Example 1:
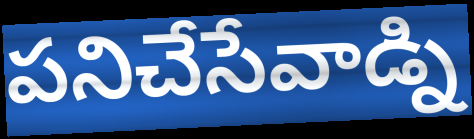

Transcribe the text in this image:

పనిచేసేవాడ్ని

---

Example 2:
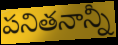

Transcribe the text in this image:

పనితనాన్నీ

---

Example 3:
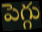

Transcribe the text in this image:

పెగ్గు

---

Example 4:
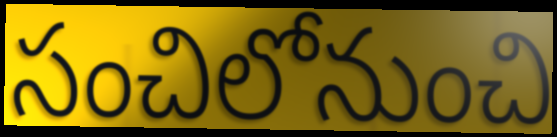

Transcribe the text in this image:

సంచిలోనుంచి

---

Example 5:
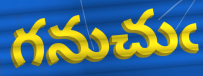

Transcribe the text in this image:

గనుచుఁ